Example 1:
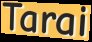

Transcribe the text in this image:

Tarai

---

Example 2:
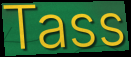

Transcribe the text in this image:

Tass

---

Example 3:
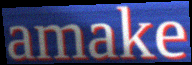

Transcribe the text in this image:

amake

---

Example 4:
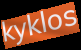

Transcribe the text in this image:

kyklos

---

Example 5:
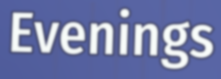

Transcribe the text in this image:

Evenings